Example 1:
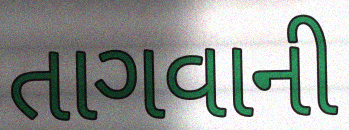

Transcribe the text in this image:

તાગવાની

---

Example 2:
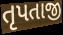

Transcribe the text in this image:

તૃપતાજી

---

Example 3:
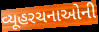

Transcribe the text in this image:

વ્યૂહરચનાઓની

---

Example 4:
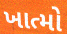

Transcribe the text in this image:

ખાત્મો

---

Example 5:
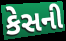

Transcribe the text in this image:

કેસની